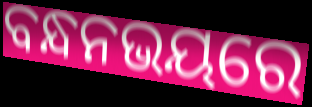
ବନ୍ଧନଭୟରେ